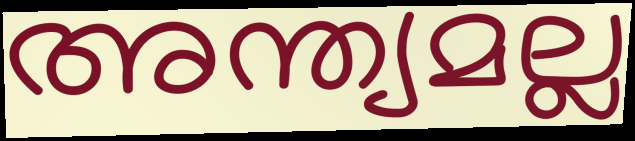
അന്ത്യമല്ല